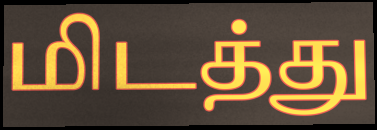
மிடத்து